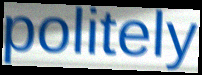
politely